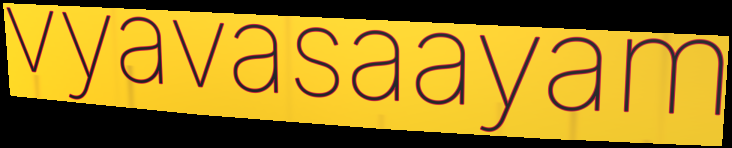
vyavasaayam